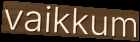
vaikkum